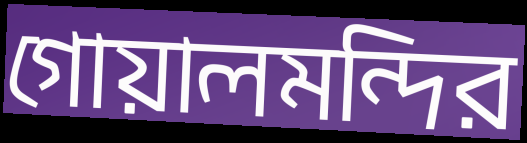
গোয়ালমন্দির